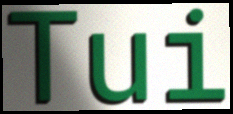
Tui